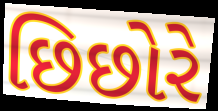
છિછોરે